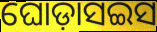
ଘୋଡ଼ାସଇସ